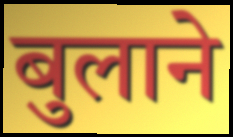
बुलाने